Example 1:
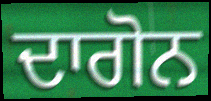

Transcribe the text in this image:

ਦਾਗੋਨ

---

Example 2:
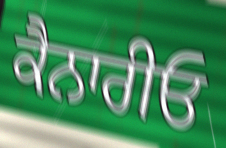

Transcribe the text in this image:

ਕੈਨਾਰੀਓ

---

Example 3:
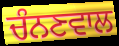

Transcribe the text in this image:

ਚੰਨਣਵਾਲ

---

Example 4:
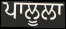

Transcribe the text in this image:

ਪਾਲੂਲਾ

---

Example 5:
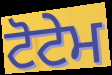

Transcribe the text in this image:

ਟੋਟੇਮ